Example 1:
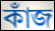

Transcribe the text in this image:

কাঁজ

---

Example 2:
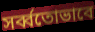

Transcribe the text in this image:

সর্ব্বতোভাবে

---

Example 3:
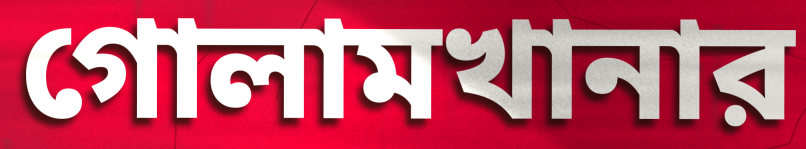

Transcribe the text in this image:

গোলামখানার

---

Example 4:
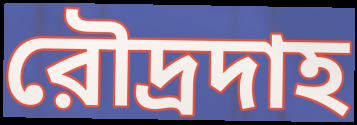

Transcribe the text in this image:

রৌদ্রদাহ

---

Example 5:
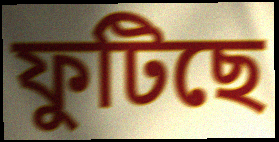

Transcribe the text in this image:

ফুটিছে